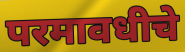
परमावधीचे